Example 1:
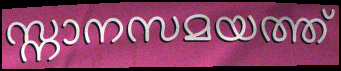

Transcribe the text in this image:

സ്നാനസമയത്ത്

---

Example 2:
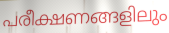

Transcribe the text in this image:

പരീക്ഷണങ്ങളിലും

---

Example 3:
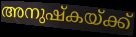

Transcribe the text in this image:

അനുഷ്കയ്ക്ക്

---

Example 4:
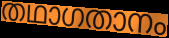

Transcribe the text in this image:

തഥാഗതാനം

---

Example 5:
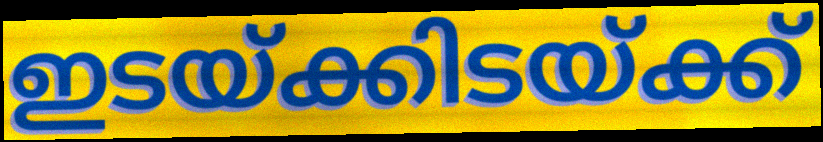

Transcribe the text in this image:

ഇടയ്ക്കിടയ്ക്ക്